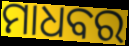
ମାଧବର